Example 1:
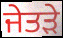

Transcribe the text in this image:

ਜੇਤੜੇ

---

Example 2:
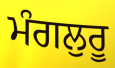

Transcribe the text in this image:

ਮੰਗਲੁਰੂ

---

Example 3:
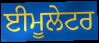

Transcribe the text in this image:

ਈਮੂਲੇਟਰ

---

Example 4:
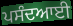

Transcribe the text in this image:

ਪਸੰਦਆਈ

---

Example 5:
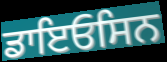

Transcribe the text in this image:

ਡਾਇਓਸਿਨ